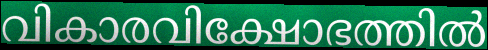
വികാരവിക്ഷോഭത്തിൽ